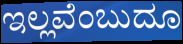
ಇಲ್ಲವೆಂಬುದೂ